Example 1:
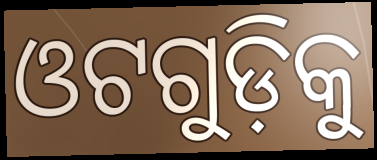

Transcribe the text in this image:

ଓଟଗୁଡ଼ିକୁ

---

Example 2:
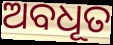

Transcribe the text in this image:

ଅବଧୂତ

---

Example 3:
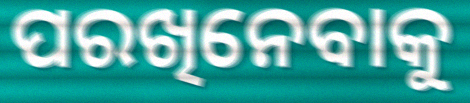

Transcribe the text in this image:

ପରଖିନେବାକୁ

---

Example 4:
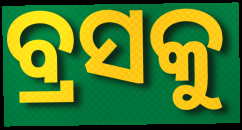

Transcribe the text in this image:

ବ୍ରସକୁ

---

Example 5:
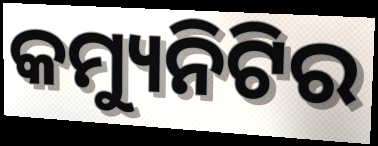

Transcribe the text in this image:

କମ୍ୟୁନିଟିର